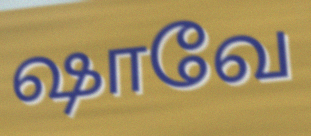
ஷாவே